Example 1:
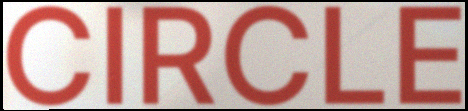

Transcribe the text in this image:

CIRCLE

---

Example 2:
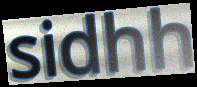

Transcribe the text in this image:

sidhh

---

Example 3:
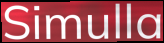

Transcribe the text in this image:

Simulla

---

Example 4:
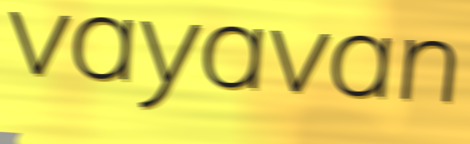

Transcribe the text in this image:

vayavan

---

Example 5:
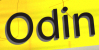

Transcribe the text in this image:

Odin